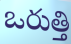
ఒరుత్తి